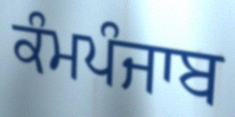
ਕੰਮਪੰਜਾਬ